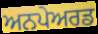
ਅਨਪੇਅਰਡ